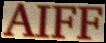
AIFF